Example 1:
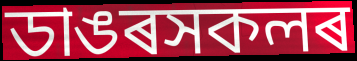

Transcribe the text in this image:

ডাঙৰসকলৰ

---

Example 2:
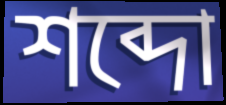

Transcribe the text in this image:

শব্দো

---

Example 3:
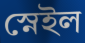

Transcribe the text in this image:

স্নেইল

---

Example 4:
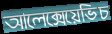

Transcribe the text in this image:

আলেক্সেয়েভিচ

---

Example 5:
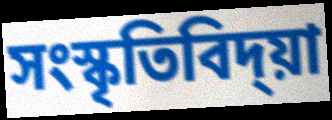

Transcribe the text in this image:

সংস্কৃতিবিদ্য়া